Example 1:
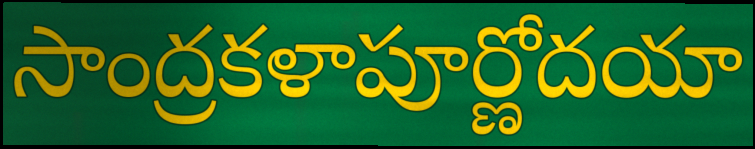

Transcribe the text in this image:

సాంద్రకళాపూర్ణోదయా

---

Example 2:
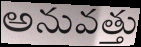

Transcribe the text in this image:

అనువత్తు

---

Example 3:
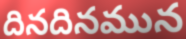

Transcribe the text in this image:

దినదినమున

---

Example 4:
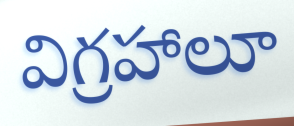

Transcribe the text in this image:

విగ్రహాలూ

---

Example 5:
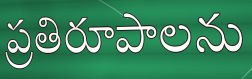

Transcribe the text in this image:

ప్రతిరూపాలను